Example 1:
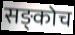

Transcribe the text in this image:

सङ्कोच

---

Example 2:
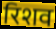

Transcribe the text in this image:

रिशव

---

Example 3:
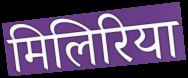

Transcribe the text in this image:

मिलिरिया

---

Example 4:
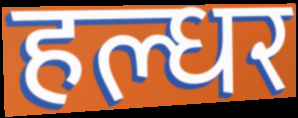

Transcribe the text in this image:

हल्धर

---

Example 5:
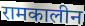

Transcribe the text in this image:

रामकालीन